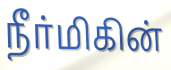
நீர்மிகின்